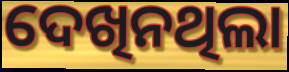
ଦେଖିନଥିଲା